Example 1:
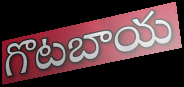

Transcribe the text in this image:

గొటబాయ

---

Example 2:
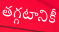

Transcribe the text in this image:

తగ్గటానికీ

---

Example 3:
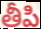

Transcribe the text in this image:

తీపి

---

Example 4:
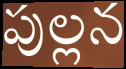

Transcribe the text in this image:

పుల్లన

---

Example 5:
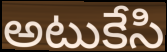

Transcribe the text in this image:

అటుకేసి